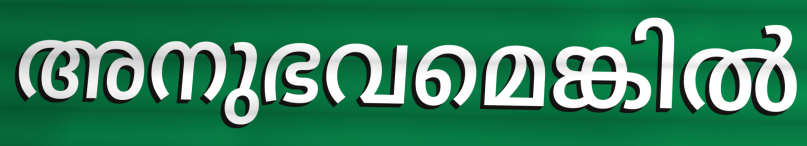
അനുഭവമെങ്കിൽ